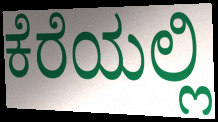
ಕೆರೆಯಲ್ಲಿ